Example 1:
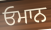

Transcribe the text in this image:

ਓਮਾਨ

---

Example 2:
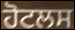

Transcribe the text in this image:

ਹੋਟਲਸ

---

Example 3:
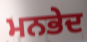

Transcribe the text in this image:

ਮਨਭੇਦ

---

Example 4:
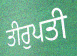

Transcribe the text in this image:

ਤੀਰੁਪਤੀ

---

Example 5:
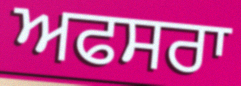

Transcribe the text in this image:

ਅਫਸਰਾ